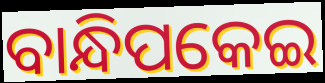
ବାନ୍ଧିପକେଇ